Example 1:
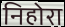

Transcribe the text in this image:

निहोरा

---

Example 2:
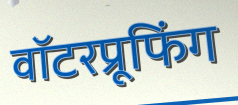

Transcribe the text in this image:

वॉटरप्रूफिंग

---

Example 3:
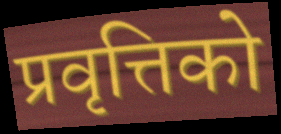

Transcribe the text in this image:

प्रवृत्तिको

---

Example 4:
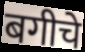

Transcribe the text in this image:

बगीचे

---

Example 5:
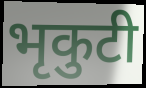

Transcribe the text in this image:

भृकुटी